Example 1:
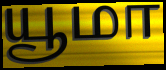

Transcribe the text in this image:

யூமா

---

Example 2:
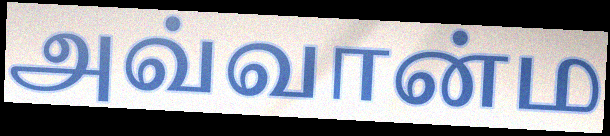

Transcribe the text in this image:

அவ்வான்ம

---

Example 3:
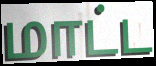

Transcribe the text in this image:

மாட்ட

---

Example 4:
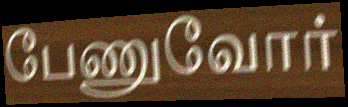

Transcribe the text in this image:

பேணுவோர்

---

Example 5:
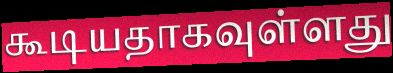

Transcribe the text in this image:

கூடியதாகவுள்ளது